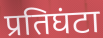
प्रतिघंटा